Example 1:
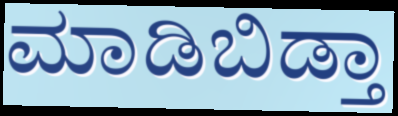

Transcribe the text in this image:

ಮಾಡಿಬಿಡ್ತಾ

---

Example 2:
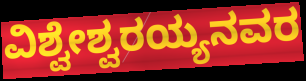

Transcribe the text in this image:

ವಿಶ್ವೇಶ್ವರಯ್ಯನವರ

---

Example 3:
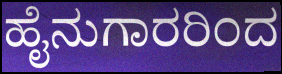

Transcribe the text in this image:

ಹೈನುಗಾರರಿಂದ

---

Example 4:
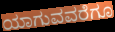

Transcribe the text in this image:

ಯಾಗುವವರೆಗೂ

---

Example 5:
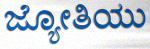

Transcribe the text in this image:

ಜ್ಯೋತಿಯು